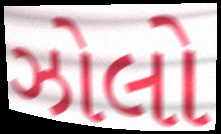
ઝોલો